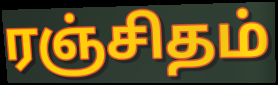
ரஞ்சிதம்